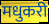
मधुकरी